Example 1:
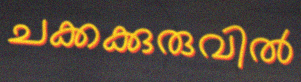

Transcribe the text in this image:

ചക്കക്കുരുവിൽ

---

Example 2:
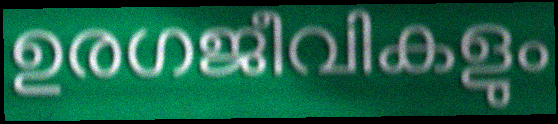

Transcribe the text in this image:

ഉരഗജീവികളും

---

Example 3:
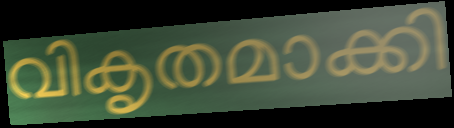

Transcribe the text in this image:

വികൃതമാക്കി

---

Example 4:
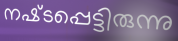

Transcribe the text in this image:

നഷ്‌ടപ്പെട്ടിരുന്നു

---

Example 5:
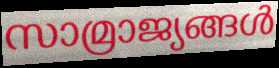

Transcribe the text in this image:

സാമ്രാജ്യങ്ങൾ